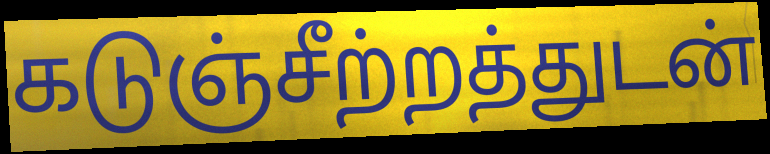
கடுஞ்சீற்றத்துடன்